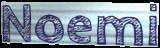
Noemi